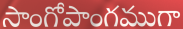
సాంగోపాంగముగా